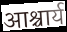
आश्चार्य